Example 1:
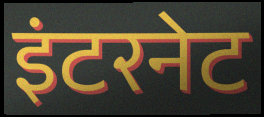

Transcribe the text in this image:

इंटरनेट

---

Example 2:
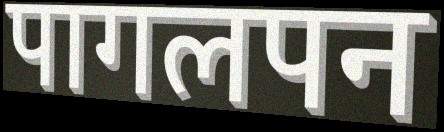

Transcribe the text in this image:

पागलपन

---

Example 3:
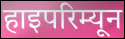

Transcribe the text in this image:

हाइपरिम्यून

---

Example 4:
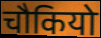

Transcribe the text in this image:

चौकियो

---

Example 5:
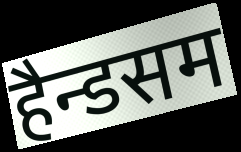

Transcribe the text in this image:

हैन्डसम